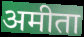
अमीता